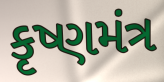
કૃષ્ણમંત્ર